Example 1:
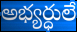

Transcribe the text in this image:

అభ్యర్ధులే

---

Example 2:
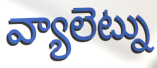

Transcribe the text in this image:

వ్యాలెట్ను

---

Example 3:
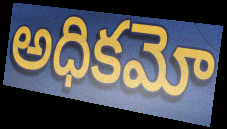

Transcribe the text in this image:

అధికమో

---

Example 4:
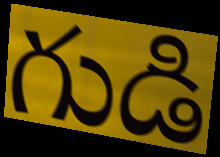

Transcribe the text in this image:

గుడి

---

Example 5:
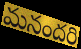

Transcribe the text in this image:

మనందరి